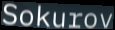
Sokurov